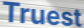
Truest